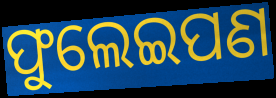
ଫୁଲେଇପଣ